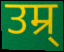
उम्र्